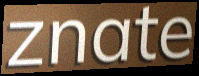
znate